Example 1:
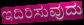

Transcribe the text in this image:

ಇದಿರಿಸುವುದು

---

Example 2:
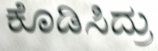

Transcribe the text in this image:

ಕೊಡಿಸಿದ್ರು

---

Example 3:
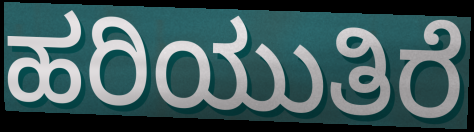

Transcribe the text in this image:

ಹರಿಯುತಿರೆ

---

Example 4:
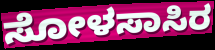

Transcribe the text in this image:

ಸೋಳಸಾಸಿರ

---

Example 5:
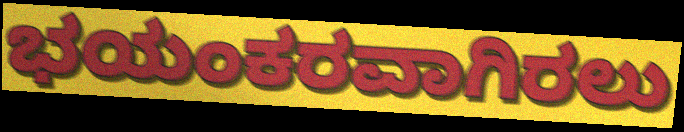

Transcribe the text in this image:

ಭಯಂಕರವಾಗಿರಲು